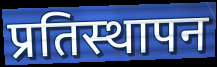
प्रतिस्थापन